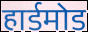
हार्डमोड